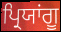
ਪ੍ਰਿਯਾਂਗੂ